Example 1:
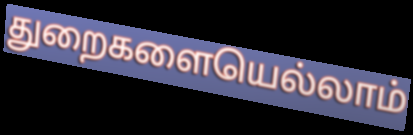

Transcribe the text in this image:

துறைகளையெல்லாம்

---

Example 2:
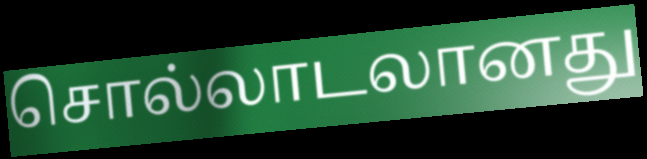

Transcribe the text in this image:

சொல்லாடலானது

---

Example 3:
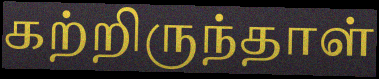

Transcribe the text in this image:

கற்றிருந்தாள்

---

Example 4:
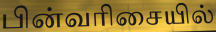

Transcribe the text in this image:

பின்வரிசையில்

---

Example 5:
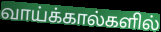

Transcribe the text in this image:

வாய்க்கால்களில்